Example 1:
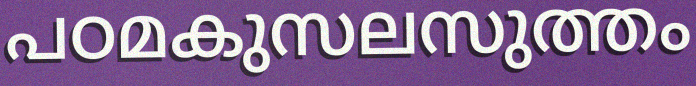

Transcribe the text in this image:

പഠമകുസലസുത്തം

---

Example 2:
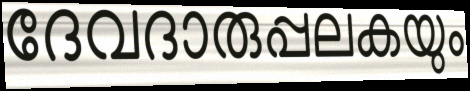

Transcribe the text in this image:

ദേവദാരുപ്പലകയും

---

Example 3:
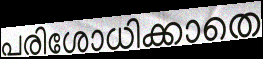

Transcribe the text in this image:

പരിശോധിക്കാതെ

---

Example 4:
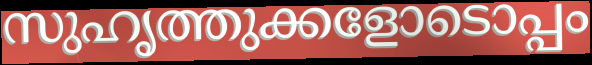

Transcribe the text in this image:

സുഹൃത്തുക്കളോടൊപ്പം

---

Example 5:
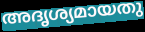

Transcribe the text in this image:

അദൃശ്യമായതു